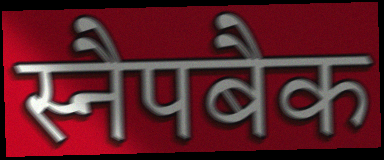
स्नैपबैक